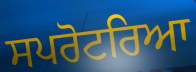
ਸਪਰੋਟਰਿਆ